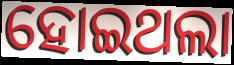
ହୋଇଥଲା